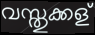
വസ്തുക്കള്